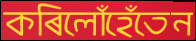
কৰিলোঁহেঁতেন